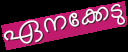
ഏനക്കേടു